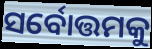
ସର୍ବୋତ୍ତମକୁ